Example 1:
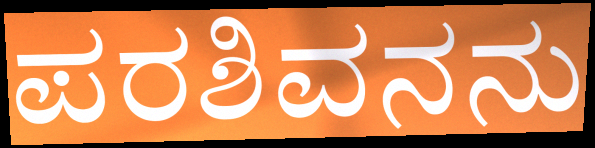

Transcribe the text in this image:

ಪರಶಿವನನು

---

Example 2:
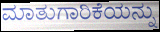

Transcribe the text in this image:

ಮಾತುಗಾರಿಕೆಯನ್ನು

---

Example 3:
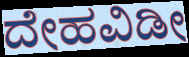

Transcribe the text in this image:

ದೇಹವಿಡೀ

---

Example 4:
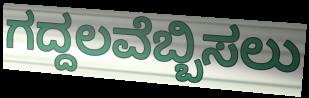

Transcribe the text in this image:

ಗದ್ದಲವೆಬ್ಬಿಸಲು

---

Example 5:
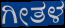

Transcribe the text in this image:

ಗೀತಳ